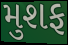
મુશફ